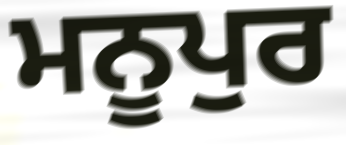
ਮਨੂਪੁਰ